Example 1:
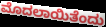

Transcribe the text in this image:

ಮೊದಲಾಯಿತೆಂದು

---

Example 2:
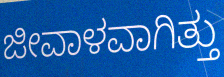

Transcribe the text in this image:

ಜೀವಾಳವಾಗಿತ್ತು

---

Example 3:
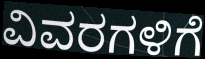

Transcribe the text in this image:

ವಿವರಗಳಿಗೆ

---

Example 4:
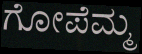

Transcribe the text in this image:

ಗೋಪೆಮ್ಮ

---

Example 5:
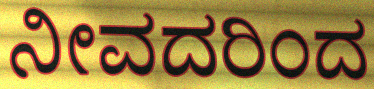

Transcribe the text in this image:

ನೀವದರಿಂದ